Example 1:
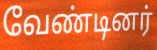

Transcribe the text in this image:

வேண்டினர்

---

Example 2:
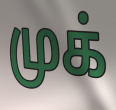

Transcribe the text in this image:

முக்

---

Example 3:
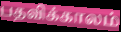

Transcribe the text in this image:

பதவிக்காலம்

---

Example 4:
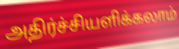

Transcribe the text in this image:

அதிர்ச்சியளிக்கலாம்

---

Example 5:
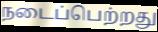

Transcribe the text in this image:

நடைப்பெற்றது